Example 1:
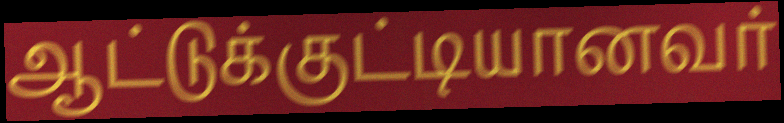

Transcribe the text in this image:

ஆட்டுக்குட்டியானவர்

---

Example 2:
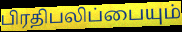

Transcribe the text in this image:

பிரதிபலிப்பையும்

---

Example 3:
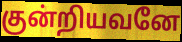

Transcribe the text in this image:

குன்றியவனே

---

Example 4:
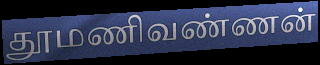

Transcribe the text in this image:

தூமணிவண்ணன்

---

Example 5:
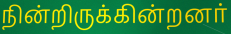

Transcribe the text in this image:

நின்றிருக்கின்றனர்